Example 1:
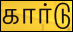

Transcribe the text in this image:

கார்டு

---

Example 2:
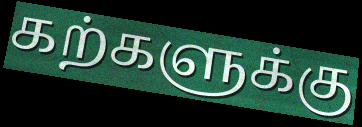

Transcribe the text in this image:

கற்களுக்கு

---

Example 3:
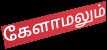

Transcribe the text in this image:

கேளாமலும்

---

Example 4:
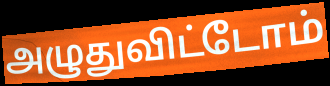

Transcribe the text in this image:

அழுதுவிட்டோம்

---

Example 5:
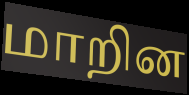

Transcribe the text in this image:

மாறின